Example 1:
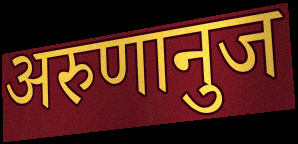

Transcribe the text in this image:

अरुणानुज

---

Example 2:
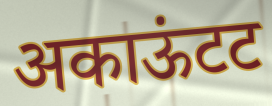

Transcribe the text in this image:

अकाऊंटट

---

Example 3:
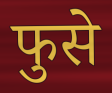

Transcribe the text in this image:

फुसे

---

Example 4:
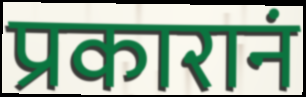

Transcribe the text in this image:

प्रकारानं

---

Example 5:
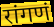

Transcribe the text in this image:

रांगणं